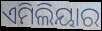
ଏମିଲିୟାର